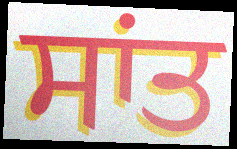
ਸਾਂਤ